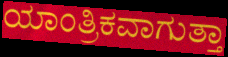
ಯಾಂತ್ರಿಕವಾಗುತ್ತಾ